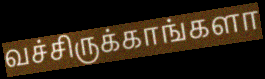
வச்சிருக்காங்களா